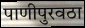
पाणीपुरवठा